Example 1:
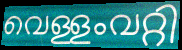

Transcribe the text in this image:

വെള്ളംവറ്റി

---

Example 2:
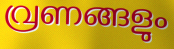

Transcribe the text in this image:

വ്രണങ്ങളും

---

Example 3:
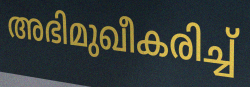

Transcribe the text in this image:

അഭിമുഖീകരിച്ച്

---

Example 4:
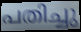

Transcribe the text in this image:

പതിച്ചു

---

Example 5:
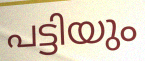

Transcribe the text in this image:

പട്ടിയും